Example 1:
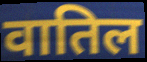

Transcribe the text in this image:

वातिल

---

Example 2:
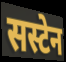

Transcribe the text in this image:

सस्टेन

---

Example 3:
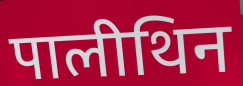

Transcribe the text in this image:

पालीथिन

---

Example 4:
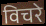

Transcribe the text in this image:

विचरे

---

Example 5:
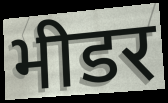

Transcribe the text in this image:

भीडर